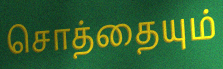
சொத்தையும்